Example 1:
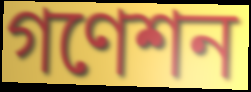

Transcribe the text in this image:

গণেশন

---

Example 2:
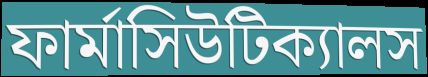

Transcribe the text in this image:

ফার্মাসিউটিক্যালস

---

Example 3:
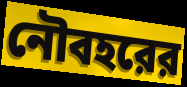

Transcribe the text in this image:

নৌবহরের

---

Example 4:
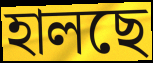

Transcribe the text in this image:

হালছে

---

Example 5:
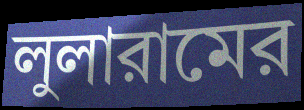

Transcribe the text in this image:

লুলারামের